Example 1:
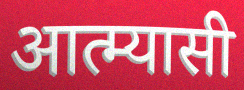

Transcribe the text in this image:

आत्म्यासी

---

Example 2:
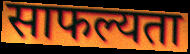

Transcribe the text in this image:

साफल्यता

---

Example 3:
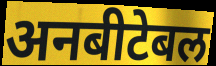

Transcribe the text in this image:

अनबीटेबल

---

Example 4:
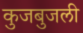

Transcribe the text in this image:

कुजबुजली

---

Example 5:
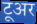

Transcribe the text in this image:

टूअर